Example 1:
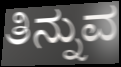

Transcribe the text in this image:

ತಿನ್ನುವ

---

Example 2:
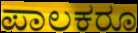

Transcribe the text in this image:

ಪಾಲಕರೂ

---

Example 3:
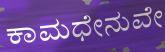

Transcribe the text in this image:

ಕಾಮಧೇನುವೇ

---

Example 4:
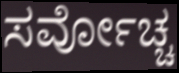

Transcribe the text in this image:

ಸರ್ವೋಚ್ಚ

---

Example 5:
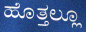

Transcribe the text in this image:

ಹೊತ್ತಲ್ಲೂ